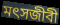
মৎসজীবী